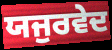
ਯਜੁਰਵੇਦ